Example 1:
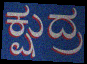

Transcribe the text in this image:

ಕ್ಷುದ್ರ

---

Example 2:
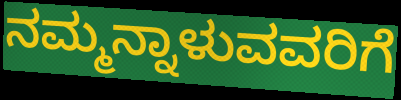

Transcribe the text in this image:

ನಮ್ಮನ್ನಾಳುವವರಿಗೆ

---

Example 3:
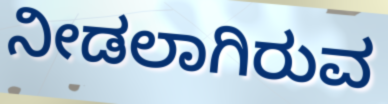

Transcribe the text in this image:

ನೀಡಲಾಗಿರುವ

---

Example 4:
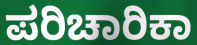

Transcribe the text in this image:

ಪರಿಚಾರಿಕಾ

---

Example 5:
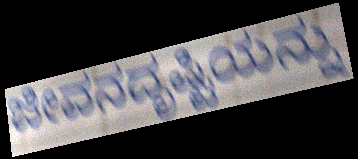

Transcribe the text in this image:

ಜೀವನದೃಷ್ಟಿಯನ್ನು